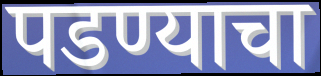
पडण्याचा